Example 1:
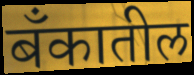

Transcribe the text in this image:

बँकातील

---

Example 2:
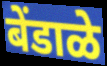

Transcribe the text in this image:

बेंडाळे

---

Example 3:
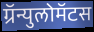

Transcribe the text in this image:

ग्रॅन्युलोमॅटस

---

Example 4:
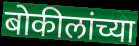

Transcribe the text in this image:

बोकीलांच्या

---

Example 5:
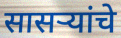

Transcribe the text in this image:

सासर्‍यांचे